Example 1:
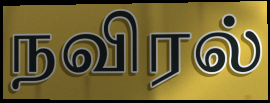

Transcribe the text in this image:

நவிரல்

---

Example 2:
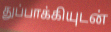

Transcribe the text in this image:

துப்பாக்கியுடன்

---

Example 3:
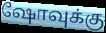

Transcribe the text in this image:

ஷோவுக்கு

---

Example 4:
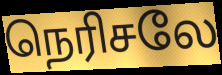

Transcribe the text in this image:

நெரிசலே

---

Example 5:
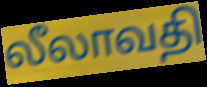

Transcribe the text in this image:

லீலாவதி